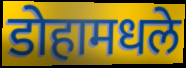
डोहामधले